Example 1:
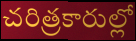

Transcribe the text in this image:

చరిత్రకారుల్లో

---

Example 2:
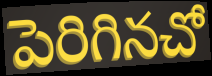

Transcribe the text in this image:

పెరిగినచో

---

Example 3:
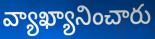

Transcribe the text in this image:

వ్యాఖ్యానించారు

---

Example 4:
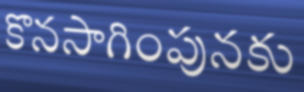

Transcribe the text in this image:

కొనసాగింపునకు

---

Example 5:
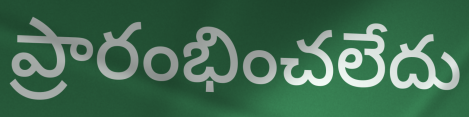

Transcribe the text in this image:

ప్రారంభించలేదు